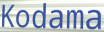
Kodama